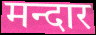
मन्दार